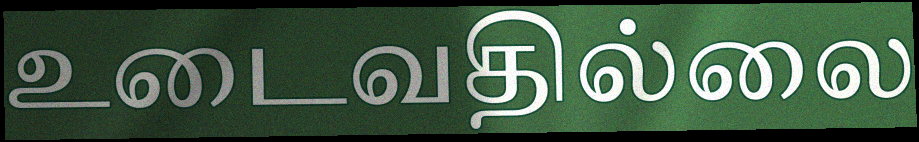
உடைவதில்லை